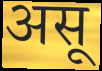
असू